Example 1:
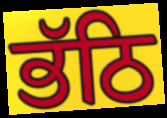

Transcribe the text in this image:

ਭੱਠਿ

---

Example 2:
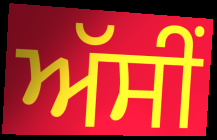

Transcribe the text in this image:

ਅੱਸੀਂ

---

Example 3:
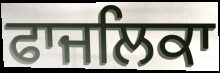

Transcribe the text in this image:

ਫਾਜਲਿਕਾ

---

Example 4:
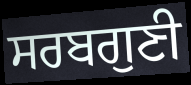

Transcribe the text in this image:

ਸਰਬਗੁਣੀ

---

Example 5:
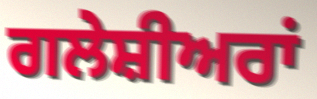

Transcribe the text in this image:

ਗਲੇਸ਼ੀਅਰਾਂ